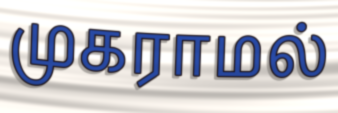
முகராமல்